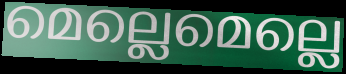
മെല്ലെമെല്ലെ